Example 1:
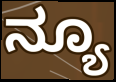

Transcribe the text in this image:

ನ್ಯೂ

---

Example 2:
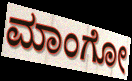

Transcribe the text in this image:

ಮಾಂಗೋ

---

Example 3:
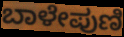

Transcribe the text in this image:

ಬಾಳೇಪುಣಿ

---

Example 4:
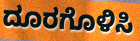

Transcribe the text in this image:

ದೂರಗೊಳಿಸಿ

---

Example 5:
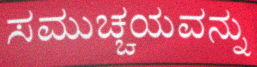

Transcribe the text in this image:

ಸಮುಚ್ಚಯವನ್ನು